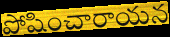
పోషించారాయన